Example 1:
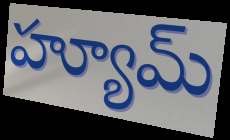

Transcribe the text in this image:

హ్యూమ్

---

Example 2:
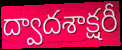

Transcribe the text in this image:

ద్వాదశాక్షరీ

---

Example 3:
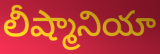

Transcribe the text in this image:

లీష్మానియా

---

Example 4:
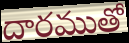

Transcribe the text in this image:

దారముతో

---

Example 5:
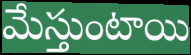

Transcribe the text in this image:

మేస్తుంటాయి